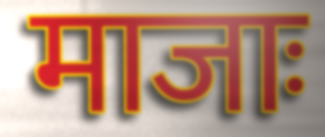
माजाः